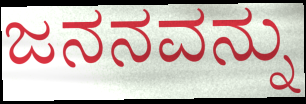
ಜನನವನ್ನು